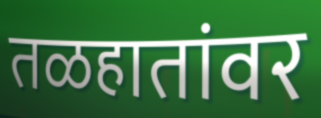
तळहातांवर